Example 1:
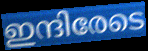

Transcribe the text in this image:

ഇന്ദിരേടെ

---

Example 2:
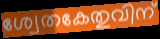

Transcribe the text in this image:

ശ്വേതകേതുവിന്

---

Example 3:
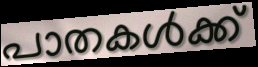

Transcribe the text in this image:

പാതകൾക്ക്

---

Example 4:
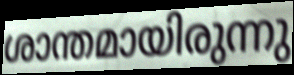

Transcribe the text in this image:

ശാന്തമായിരുന്നു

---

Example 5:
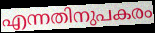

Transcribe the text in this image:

എന്നതിനുപകരം